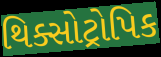
થિક્સોટ્રોપિક